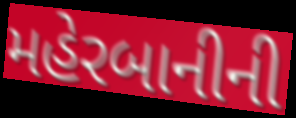
મહેરબાનીની